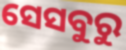
ସେସବୁରୁ